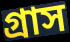
গ্রাস